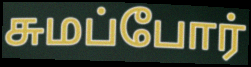
சுமப்போர்